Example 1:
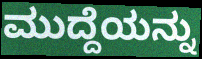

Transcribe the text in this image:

ಮುದ್ದೆಯನ್ನು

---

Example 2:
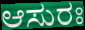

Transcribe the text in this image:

ಆಸುರಃ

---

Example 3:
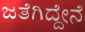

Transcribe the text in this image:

ಜತೆಗಿದ್ದೇನೆ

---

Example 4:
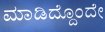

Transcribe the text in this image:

ಮಾಡಿದ್ದೊಂದೇ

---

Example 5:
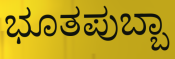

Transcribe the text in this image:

ಭೂತಪುಬ್ಬಾ